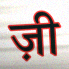
ज़ी